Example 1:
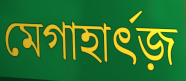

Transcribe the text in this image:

মেগাহার্ৎজ়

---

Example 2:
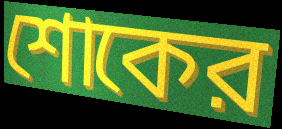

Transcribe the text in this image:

শোকের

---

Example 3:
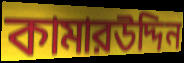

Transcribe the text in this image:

কামারউদ্দিন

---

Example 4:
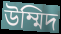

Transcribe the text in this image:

উম্মিদ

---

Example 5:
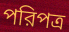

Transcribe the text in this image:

পরিপত্র